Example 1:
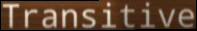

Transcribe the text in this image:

Transitive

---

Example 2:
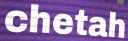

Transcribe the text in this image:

chetah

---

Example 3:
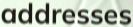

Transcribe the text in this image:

addresses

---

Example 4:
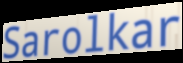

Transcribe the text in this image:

Sarolkar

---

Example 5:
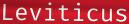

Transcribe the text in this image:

Leviticus